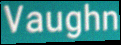
Vaughn